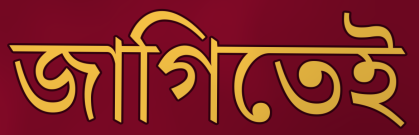
জাগিতেই